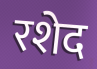
रशेद